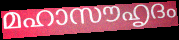
മഹാസൗഹൃദം